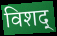
विशद्